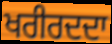
ਖਰੀਰਦਦਾ